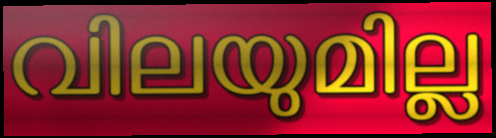
വിലയുമില്ല